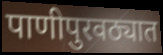
पाणीपुरवठ्यात